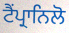
ਟੈਂਪ੍ਰਾਨਿਲੋ